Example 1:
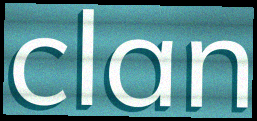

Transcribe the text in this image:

clan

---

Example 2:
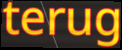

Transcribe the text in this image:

terug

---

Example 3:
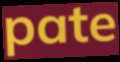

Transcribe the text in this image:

pate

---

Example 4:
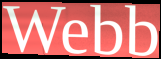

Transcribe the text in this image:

Webb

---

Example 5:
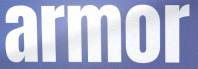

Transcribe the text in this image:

armor